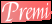
Premi